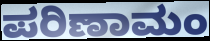
ಪರಿಣಾಮಂ